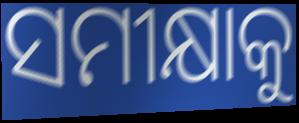
ସମୀକ୍ଷାକୁ